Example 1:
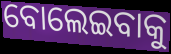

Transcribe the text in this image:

ବୋଲେଇବାକୁ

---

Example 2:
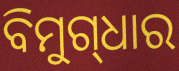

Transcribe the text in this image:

ବିମୁଗ୍‌ଧାର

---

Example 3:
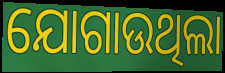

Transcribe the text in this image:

ଯୋଗାଉଥିଲା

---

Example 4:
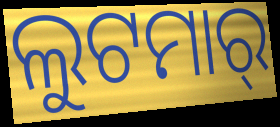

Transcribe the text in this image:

ଲୁଟମାର୍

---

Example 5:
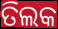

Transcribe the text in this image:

ତିଲକ